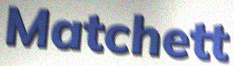
Matchett